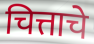
चित्ताचे